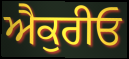
ਐਕੁਰੀਓ